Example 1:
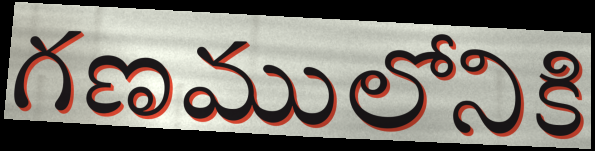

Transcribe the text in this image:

గణములోనికి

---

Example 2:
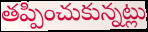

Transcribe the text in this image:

తప్పించుకున్నట్లు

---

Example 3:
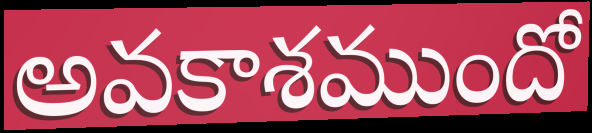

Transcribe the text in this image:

అవకాశముందో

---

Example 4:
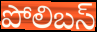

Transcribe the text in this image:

పోలిబస్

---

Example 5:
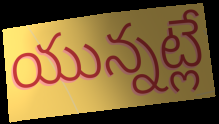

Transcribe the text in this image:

యున్నట్లే